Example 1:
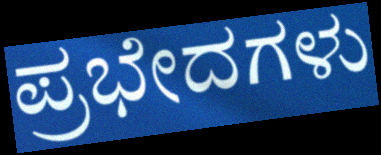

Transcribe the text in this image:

ಪ್ರಭೇದಗಳು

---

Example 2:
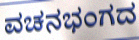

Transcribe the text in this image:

ವಚನಭಂಗದ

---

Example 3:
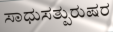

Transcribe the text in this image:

ಸಾಧುಸತ್ಪುರುಷರ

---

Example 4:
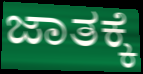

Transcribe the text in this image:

ಜಾತಕ್ಕೆ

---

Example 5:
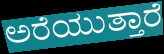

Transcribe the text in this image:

ಅರೆಯುತ್ತಾರೆ